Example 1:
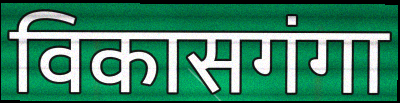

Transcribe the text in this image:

विकासगंगा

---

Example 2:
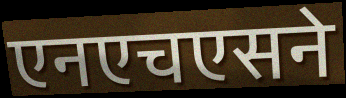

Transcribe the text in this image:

एनएचएसने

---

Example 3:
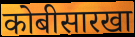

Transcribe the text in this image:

कोबीसारखा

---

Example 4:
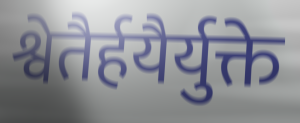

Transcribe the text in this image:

श्वेतैर्हयैर्युक्ते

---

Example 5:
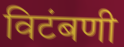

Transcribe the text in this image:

विटंबणी